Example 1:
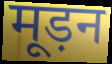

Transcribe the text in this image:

मूड़न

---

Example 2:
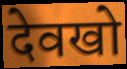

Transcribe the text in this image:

देवखो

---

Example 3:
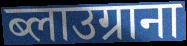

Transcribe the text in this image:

ब्लाउग्राना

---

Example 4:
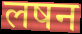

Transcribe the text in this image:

लषन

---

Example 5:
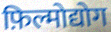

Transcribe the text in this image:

फ़िल्मोद्योग